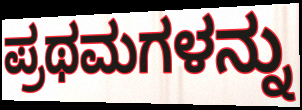
ಪ್ರಥಮಗಳನ್ನು